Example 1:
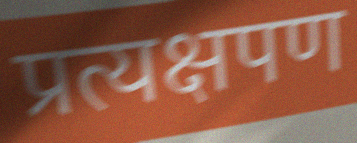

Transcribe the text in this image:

प्रत्यक्षपण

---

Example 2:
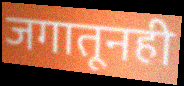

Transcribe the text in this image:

जगातूनही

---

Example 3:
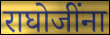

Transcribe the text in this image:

राघोजींना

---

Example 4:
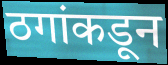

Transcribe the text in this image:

ठगांकडून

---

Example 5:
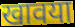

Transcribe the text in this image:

खावया